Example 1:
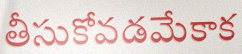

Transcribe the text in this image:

తీసుకోవడమేకాక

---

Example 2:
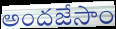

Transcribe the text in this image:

అందజేసాం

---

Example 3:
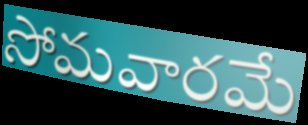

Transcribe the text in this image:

సోమవారమే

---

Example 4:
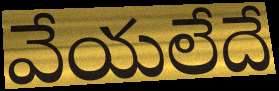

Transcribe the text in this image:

వేయలేదే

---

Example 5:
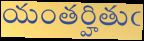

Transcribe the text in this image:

యంతర్హితుఁ